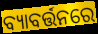
ବ୍ୟାବର୍ତ୍ତନରେ